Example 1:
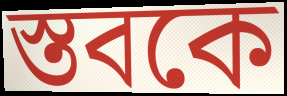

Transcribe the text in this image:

স্তবকে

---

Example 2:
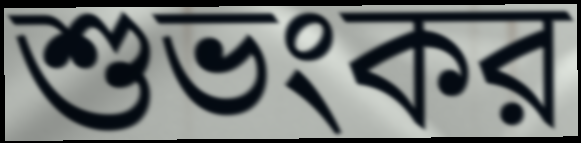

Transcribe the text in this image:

শুভংকর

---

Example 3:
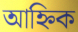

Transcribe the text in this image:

আহ্নিক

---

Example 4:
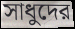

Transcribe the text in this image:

সাধুদের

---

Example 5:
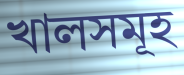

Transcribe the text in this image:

খালসমূহ